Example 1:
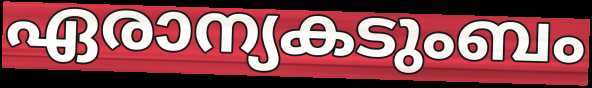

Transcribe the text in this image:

ഏരാന്യകടുംബം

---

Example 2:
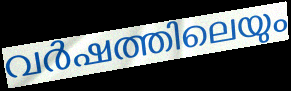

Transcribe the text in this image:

വർഷത്തിലെയും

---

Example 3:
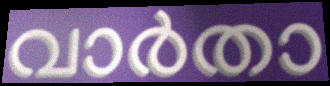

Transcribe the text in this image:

വാർതാ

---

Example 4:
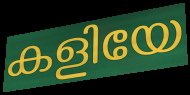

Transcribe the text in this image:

കളിയേ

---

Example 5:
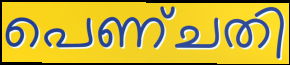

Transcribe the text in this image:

പെണ്ചതി